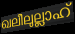
ഖലീലുല്ലാഹ്